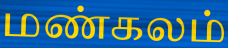
மண்கலம்